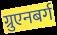
ग्रुएनबर्ग